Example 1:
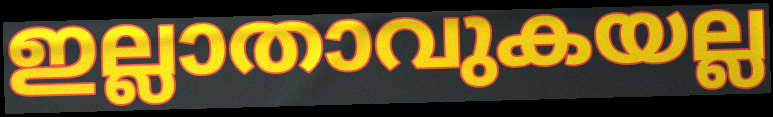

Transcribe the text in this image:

ഇല്ലാതാവുകയല്ല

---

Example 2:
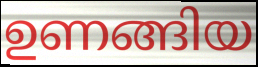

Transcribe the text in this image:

ഉണങ്ങിയ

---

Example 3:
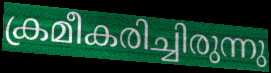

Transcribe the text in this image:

ക്രമീകരിച്ചിരുന്നു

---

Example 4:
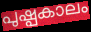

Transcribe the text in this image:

പുഷ്പകാലം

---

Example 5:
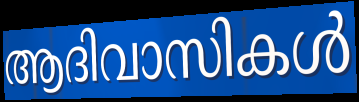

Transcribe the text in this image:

ആദിവാസികൾ